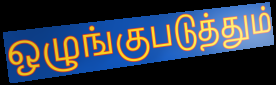
ஒழுங்குபடுத்தும்